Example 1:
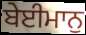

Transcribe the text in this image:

ਬੇਈਮਾਨੁ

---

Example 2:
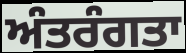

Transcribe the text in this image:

ਅੰਤਰੰਗਤਾ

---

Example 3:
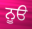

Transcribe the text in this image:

ਨੂੳ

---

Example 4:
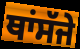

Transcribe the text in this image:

ਥਾਂਸੱਜੇ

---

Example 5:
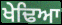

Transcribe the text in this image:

ਖੇਢਿਆ